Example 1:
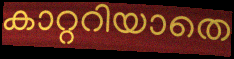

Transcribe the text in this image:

കാറ്ററിയാതെ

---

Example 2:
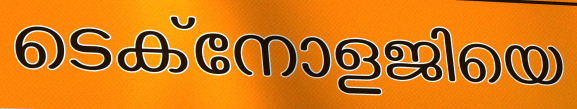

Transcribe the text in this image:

ടെക്‌നോളജിയെ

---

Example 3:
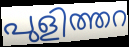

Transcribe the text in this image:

പുളിത്തറ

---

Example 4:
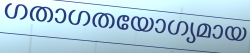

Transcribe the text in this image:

ഗതാഗതയോഗ്യമായ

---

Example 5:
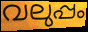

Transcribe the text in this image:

വലുപ്പം